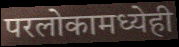
परलोकामध्येही